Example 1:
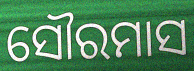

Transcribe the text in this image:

ସୌରମାସ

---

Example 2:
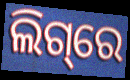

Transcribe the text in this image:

ଲିଗ୍‌ରେ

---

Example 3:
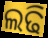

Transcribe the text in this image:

ଲଢି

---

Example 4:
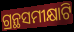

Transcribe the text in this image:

ଗ୍ରନ୍ଥସମୀକ୍ଷାଟି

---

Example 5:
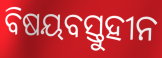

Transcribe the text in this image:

ବିଷୟବସ୍ତୁହୀନ